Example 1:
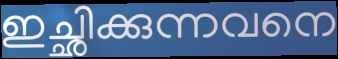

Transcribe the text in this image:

ഇച്ഛിക്കുന്നവനെ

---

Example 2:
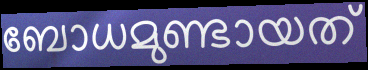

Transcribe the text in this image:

ബോധമുണ്ടായത്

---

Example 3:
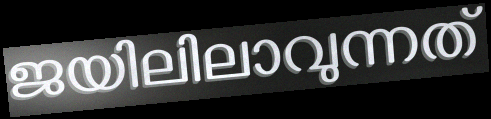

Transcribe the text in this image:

ജയിലിലാവുന്നത്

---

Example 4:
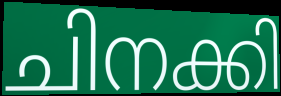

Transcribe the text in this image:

ചിനക്കി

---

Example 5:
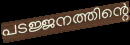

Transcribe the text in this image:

പടജ്ജനത്തിന്റെ